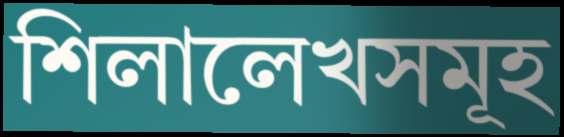
শিলালেখসমূহ